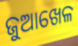
ଜୁଆଖେଳ